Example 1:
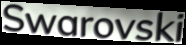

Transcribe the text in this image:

Swarovski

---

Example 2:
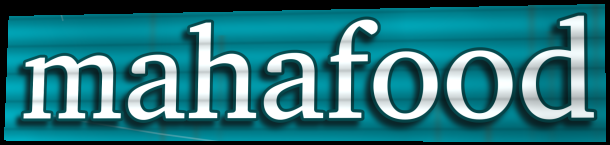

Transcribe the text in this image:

mahafood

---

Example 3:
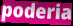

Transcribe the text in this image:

poderia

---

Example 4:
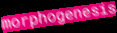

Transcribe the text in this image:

morphogenesis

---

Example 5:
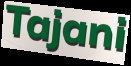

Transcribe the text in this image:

Tajani